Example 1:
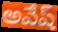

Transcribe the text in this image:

అవేష్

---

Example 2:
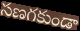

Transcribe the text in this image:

సణగకుండా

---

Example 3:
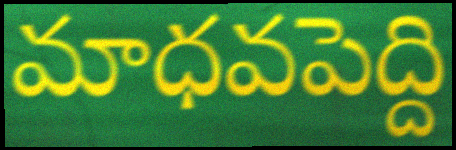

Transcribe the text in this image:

మాధవపెద్ది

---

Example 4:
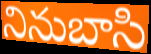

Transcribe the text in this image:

నినుబాసి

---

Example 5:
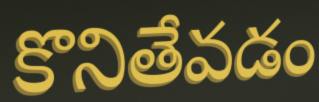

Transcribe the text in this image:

కొనితేవడం